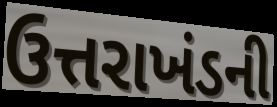
ઉત્તરાખંડની